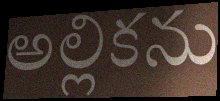
అల్లికను